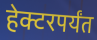
हेक्टरपर्यंत